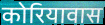
कोरियावास